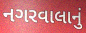
નગરવાલાનું